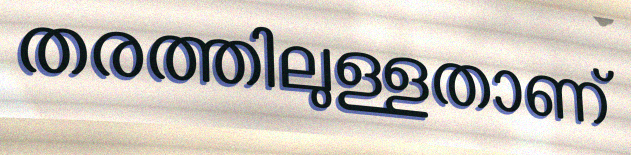
തരത്തിലുള്ളതാണ്